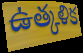
ఉత్కళిక